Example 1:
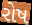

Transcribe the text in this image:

રોષ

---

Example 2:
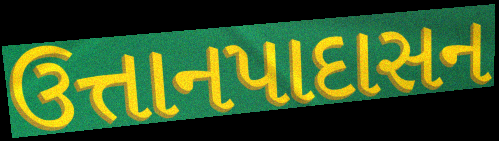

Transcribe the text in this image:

ઉત્તાનપાદાસન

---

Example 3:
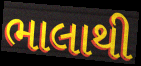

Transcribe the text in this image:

ભાલાથી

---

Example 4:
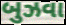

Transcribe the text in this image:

બુઝવા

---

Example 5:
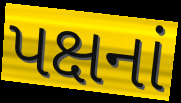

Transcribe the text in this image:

પક્ષનાં